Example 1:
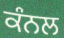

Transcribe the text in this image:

ਕੰਨਲ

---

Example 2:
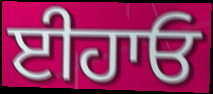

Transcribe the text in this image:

ਈਹਾਓ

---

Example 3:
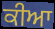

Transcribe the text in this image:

ਕੀਆ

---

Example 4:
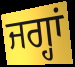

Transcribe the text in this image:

ਜਗ੍ਹਾਂ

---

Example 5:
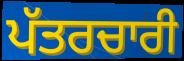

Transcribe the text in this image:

ਪੱਤਰਚਾਰੀ